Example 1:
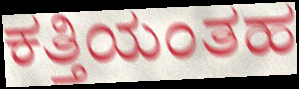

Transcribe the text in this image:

ಕತ್ತಿಯಂತಹ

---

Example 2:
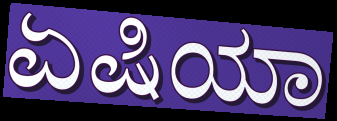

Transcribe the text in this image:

ಏಷಿಯಾ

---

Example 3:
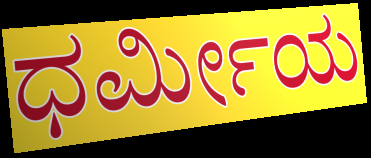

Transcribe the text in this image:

ಧರ್ಮೀಯ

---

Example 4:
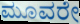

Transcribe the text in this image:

ಮೂವರೇ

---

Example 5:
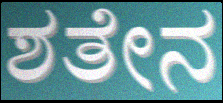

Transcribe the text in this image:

ಶತೇನ